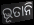
ଭୂତାନି